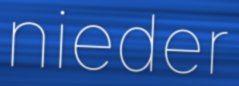
nieder